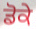
ਡੋਕੇ